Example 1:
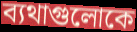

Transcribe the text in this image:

ব্যথাগুলোকে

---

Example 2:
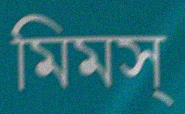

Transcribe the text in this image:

মিমস্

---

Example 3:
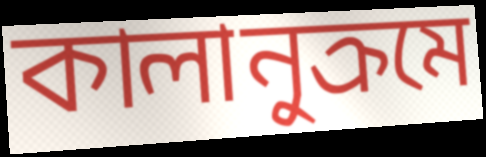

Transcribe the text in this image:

কালানুক্রমে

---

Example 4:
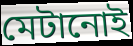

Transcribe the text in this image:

মেটানোই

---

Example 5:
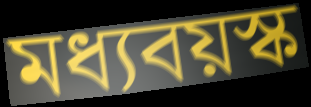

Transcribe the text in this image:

মধ্যবয়স্ক